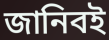
জানিবই